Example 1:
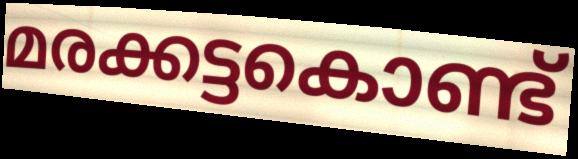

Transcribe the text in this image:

മരക്കട്ടകൊണ്ട്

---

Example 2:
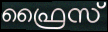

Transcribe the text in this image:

ഫ്രൈസ്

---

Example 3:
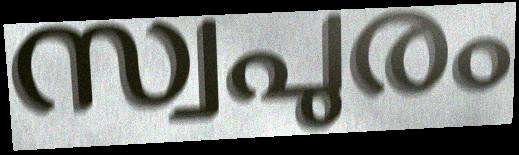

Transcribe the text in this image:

സ്വപുരം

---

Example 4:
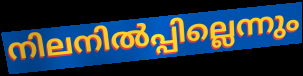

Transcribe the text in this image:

നിലനിൽപ്പില്ലെന്നും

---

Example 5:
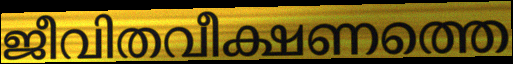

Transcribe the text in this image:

ജീവിതവീക്ഷണത്തെ